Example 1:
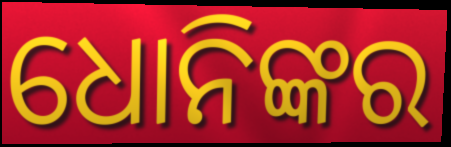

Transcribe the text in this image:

ଧୋନିଙ୍କର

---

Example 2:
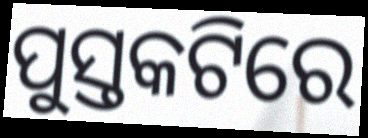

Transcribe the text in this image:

ପୁସ୍ତକଟିରେ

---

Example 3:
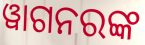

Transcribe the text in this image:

ୱାଗନରଙ୍କ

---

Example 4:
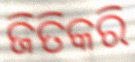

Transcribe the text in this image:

ଜିତିକରି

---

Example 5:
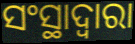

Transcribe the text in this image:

ସଂସ୍ଥାଦ୍ଵାରା